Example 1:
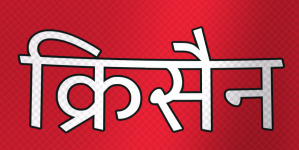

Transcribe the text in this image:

क्रिसैन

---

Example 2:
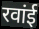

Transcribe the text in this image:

रवांई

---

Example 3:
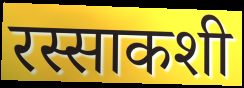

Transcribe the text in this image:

रस्साकशी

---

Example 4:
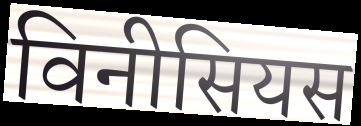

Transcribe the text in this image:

विनीसियस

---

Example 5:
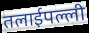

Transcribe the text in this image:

तलाईपल्ली